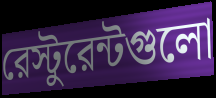
রেস্টুরেন্টগুলো